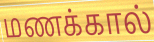
மணக்கால்